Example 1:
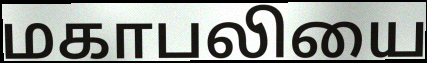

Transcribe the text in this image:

மகாபலியை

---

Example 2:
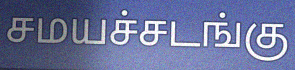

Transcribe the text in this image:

சமயச்சடங்கு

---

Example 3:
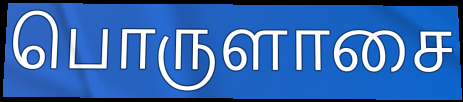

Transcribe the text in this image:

பொருளாசை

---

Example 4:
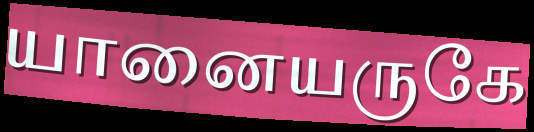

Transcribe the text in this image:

யானையருகே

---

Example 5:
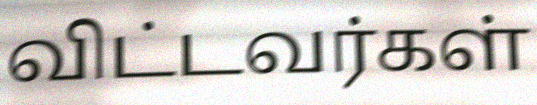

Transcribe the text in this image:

விட்டவர்கள்